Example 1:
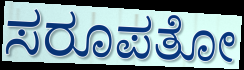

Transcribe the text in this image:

ಸರೂಪತೋ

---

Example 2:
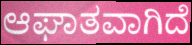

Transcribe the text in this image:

ಆಘಾತವಾಗಿದೆ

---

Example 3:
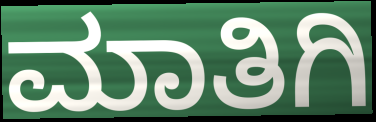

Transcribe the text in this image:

ಮಾತಿಗಿ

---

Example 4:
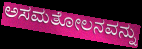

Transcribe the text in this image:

ಅಸಮತೋಲನವನ್ನು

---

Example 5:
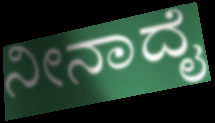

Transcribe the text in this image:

ನೀನಾದೈ